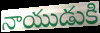
నాయుడుకి